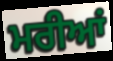
ਮਰੀਆਂ